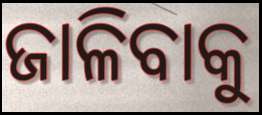
ଜାଳିବାକୁ